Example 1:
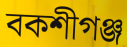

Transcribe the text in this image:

বকশীগঞ্জ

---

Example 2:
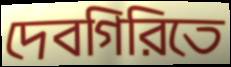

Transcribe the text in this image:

দেবগিরিতে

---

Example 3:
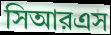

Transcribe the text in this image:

সিআরএস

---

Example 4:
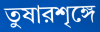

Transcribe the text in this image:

তুষারশৃঙ্গে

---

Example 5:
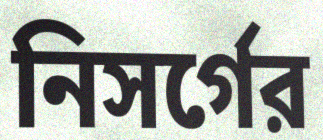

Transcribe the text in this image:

নিসর্গের